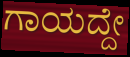
ಗಾಯದ್ದೇ